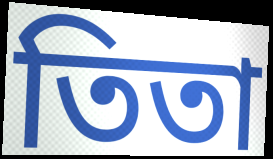
তিতা